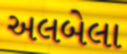
અલબેલા